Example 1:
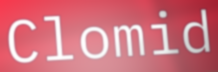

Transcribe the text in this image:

Clomid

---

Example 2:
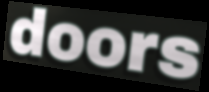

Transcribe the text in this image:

doors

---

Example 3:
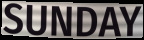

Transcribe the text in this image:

SUNDAY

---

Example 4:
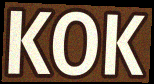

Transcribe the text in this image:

KOK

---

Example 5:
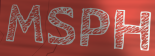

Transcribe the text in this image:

MSPH